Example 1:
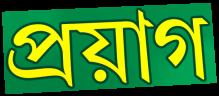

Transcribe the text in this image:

প্ৰয়াগ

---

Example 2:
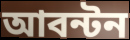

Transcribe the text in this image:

আবন্টন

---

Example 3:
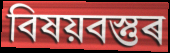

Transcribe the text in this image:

বিষয়বস্তুৰ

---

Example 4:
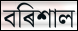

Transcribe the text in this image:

বৰিশাল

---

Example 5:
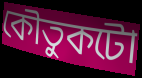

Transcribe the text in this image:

কৌতুকটো